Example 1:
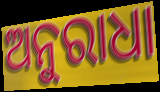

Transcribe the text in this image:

ଅନୁରାଧା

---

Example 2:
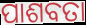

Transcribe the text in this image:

ପାଶବତା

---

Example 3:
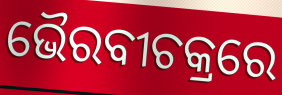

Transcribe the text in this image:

ଭୈରବୀଚକ୍ରରେ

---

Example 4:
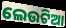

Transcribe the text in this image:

ଲେଉଟିଆ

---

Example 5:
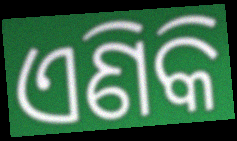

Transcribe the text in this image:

ଏଣିକି